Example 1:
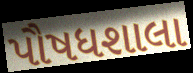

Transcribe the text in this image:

પૌષધશાલા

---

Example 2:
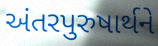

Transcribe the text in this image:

અંતરપુરુષાર્થને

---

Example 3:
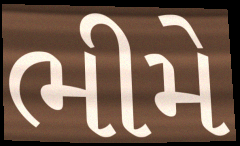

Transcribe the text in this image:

ભીમે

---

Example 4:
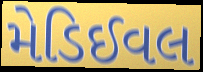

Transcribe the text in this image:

મેડિઈવલ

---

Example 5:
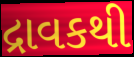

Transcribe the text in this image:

દ્રાવકથી